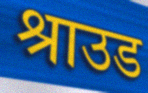
श्राउड